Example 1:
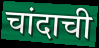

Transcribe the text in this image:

चांदाची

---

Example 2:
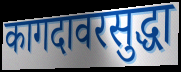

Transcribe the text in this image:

कागदावरसुद्धा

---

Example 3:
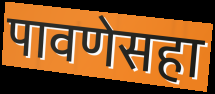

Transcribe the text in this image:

पावणेसहा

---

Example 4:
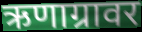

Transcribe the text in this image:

ऋणाग्रावर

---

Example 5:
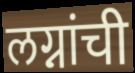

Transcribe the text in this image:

लग्नांची